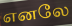
எனலே